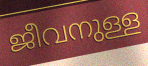
ജീവനുള്ള